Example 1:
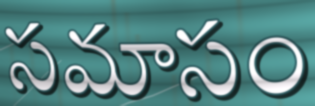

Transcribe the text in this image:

సమాసం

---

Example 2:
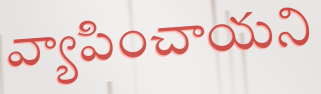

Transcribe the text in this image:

వ్యాపించాయని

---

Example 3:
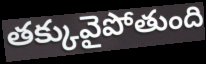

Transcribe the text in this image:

తక్కువైపోతుంది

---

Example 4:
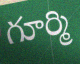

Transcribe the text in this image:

గూర్మి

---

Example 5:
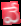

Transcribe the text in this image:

వే